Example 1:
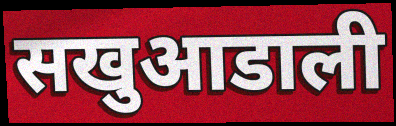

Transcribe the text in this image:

सखुआडाली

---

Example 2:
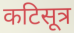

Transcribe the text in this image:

कटिसूत्र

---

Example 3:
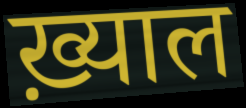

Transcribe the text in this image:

ख़्याल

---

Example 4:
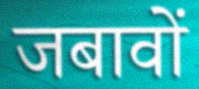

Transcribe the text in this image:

जबावों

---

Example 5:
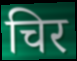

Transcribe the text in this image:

चिर